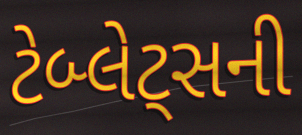
ટેબ્લેટ્સની